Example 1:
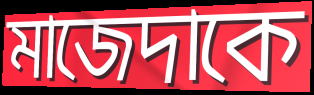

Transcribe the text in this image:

মাজেদাকে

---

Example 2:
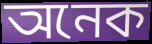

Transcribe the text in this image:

অনেক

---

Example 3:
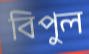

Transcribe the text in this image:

বিপুল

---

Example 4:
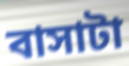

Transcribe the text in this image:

বাসাটা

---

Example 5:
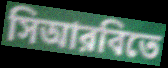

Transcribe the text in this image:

সিআরবিতে